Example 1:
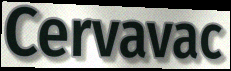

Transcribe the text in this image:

Cervavac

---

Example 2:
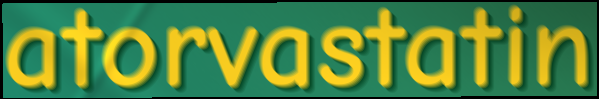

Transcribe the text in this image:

atorvastatin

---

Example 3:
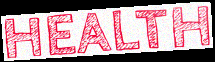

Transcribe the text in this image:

HEALTH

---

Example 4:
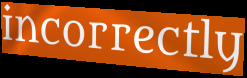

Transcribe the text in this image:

incorrectly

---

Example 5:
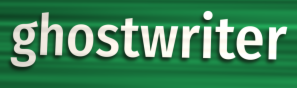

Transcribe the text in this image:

ghostwriter